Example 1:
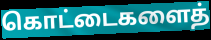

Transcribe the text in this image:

கொட்டைகளைத்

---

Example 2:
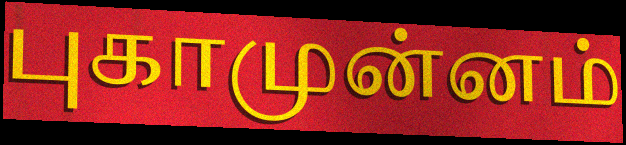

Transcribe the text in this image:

புகாமுன்னம்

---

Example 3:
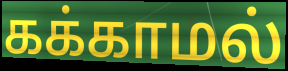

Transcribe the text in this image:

கக்காமல்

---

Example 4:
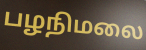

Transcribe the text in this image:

பழநிமலை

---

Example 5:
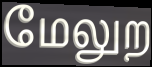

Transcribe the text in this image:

மேலுற